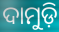
ଦାମୁଡ଼ି